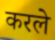
करले